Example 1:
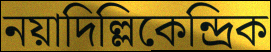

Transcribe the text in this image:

নয়াদিল্লিকেন্দ্রিক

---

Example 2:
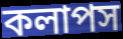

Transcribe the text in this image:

কলাপস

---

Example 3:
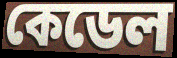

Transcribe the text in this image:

কেডেল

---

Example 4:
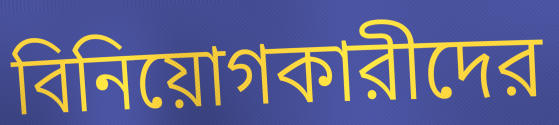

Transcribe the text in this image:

বিনিয়োগকারীদের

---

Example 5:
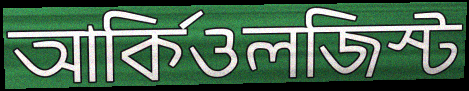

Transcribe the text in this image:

আর্কিওলজিস্ট